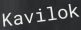
Kavilok